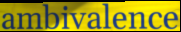
ambivalence